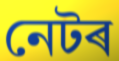
নেটৰ